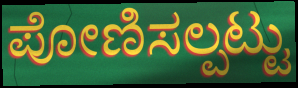
ಪೋಣಿಸಲ್ಪಟ್ಟು